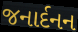
જનાર્દનન